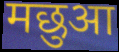
मछुआ